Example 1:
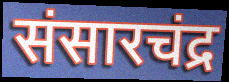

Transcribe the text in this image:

संसारचंद्र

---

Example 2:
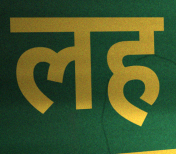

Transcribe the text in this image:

लह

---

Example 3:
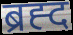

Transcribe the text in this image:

ब्रह्द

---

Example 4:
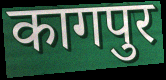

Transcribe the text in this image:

कागपुर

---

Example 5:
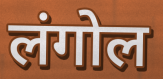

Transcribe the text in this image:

लंगोल